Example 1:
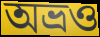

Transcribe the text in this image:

অভ্রও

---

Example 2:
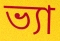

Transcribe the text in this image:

ভ্যা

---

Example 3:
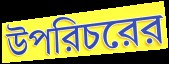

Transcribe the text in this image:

উপরিচরের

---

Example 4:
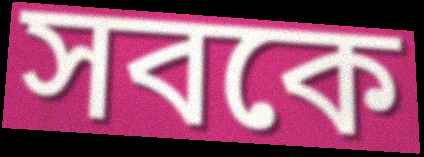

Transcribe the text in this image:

সবকে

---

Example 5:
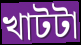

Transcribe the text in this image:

খাটটা